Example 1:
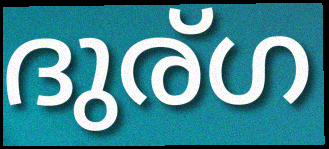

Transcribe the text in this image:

ദുര്ഗ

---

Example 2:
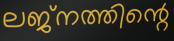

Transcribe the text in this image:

ലജ്നത്തിന്റെ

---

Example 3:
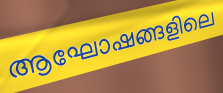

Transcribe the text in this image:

ആഘോഷങ്ങളിലെ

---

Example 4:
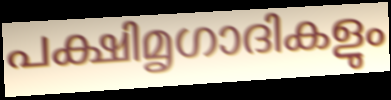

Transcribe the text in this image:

പക്ഷിമൃഗാദികളും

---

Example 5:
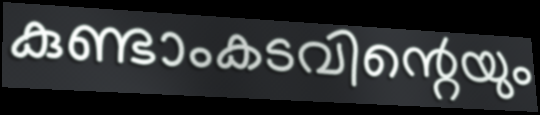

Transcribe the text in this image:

കുണ്ടാംകടവിന്റെയും